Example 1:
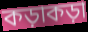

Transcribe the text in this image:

কড়াকড়া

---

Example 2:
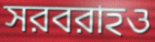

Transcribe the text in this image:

সরবরাহও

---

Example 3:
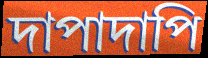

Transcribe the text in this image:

দাপাদাপি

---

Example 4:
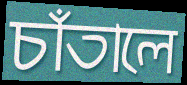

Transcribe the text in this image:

চাঁতালে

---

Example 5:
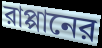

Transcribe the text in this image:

রাপ্পানের